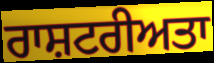
ਰਾਸ਼ਟਰੀਅਤਾ